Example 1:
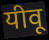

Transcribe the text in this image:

यीवू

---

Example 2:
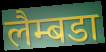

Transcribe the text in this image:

लैम्बडा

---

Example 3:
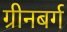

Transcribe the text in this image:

ग्रीनबर्ग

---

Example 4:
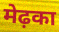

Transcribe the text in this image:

मेढ़का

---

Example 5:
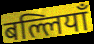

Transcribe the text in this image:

बल्लियाँ